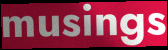
musings